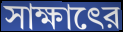
সাক্ষাৎের